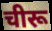
चीरू